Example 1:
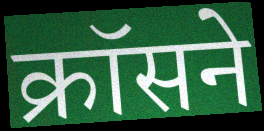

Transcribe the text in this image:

क्रॉसने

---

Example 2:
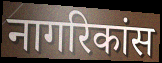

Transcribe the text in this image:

नागरिकांस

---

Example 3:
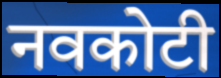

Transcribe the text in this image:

नवकोटी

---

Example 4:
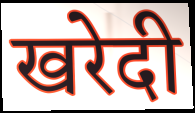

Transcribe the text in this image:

खरेदी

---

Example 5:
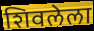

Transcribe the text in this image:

शिवलेला